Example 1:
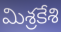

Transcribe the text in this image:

మిశ్రకేశి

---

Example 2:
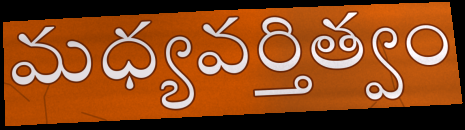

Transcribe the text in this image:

మధ్యవర్తిత్వం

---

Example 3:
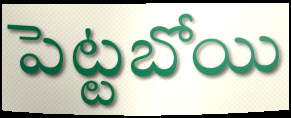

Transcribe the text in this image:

పెట్టబోయి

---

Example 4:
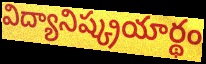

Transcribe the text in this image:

విద్యానిష్క్రయార్థం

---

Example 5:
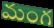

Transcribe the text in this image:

మంగ